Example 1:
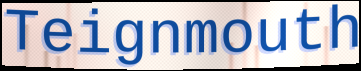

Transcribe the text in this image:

Teignmouth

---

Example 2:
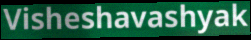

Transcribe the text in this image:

Visheshavashyak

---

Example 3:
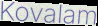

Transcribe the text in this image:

Kovalam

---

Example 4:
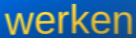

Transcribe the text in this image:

werken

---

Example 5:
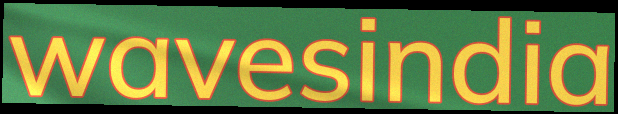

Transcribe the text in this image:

wavesindia